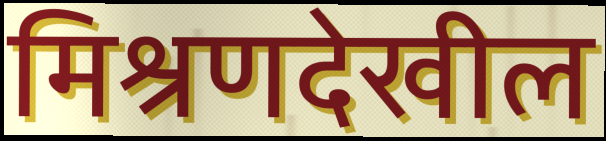
मिश्रणदेखील